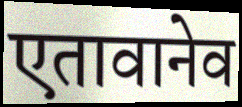
एतावानेव